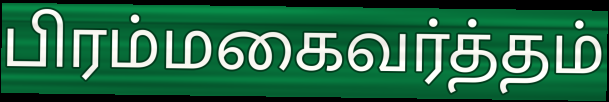
பிரம்மகைவர்த்தம்